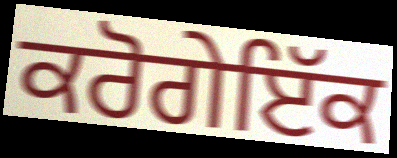
ਕਰੋਗੇਇੱਕ